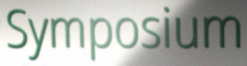
Symposium